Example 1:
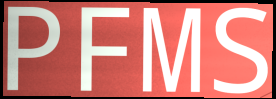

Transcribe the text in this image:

PFMS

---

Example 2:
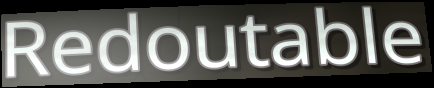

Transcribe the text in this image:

Redoutable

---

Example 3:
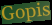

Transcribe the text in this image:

Gopis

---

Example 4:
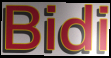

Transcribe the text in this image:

Bidi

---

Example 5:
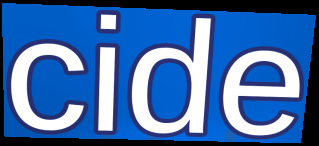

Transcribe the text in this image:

cide